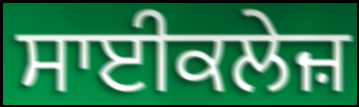
ਸਾਈਕਲੇਜ਼